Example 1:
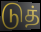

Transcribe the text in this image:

டுத்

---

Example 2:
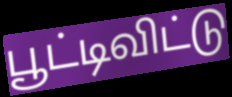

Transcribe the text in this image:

பூட்டிவிட்டு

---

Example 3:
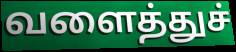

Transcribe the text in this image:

வளைத்துச்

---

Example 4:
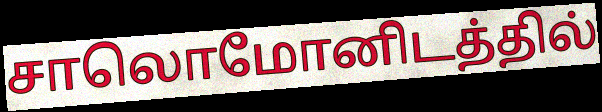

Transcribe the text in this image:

சாலொமோனிடத்தில்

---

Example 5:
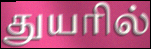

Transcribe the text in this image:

துயரில்